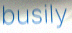
busily